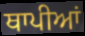
ਥਾਪੀਆਂ